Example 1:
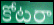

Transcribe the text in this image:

కోటరా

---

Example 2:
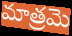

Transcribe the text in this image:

మాత్రమె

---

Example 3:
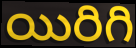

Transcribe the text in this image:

యిరిగి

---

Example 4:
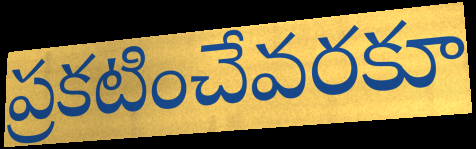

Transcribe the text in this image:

ప్రకటించేవరకూ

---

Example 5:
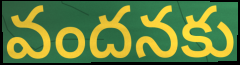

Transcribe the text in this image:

వందనకు